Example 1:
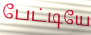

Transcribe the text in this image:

பேட்டியே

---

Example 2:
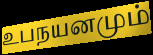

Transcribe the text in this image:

உபநயனமும்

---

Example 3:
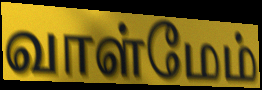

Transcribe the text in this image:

வாள்மேம்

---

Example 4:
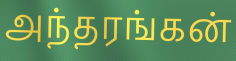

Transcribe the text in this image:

அந்தரங்கன்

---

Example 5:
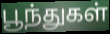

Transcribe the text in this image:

பூந்துகள்